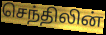
செந்திலின்